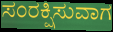
ಸಂರಕ್ಷಿಸುವಾಗ